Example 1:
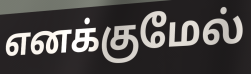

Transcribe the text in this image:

எனக்குமேல்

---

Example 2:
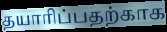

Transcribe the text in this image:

தயாரிப்பதற்காக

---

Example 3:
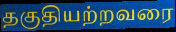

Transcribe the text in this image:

தகுதியற்றவரை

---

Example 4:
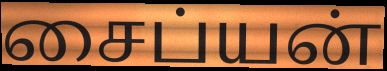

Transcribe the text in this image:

சைப்யன்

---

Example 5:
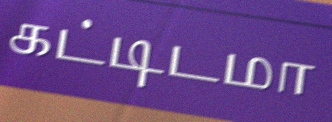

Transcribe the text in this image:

கட்டிடமா